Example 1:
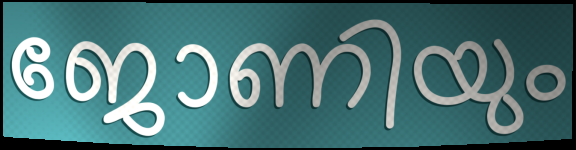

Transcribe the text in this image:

ജോണിയും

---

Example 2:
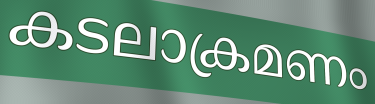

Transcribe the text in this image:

കടലാക്രമണം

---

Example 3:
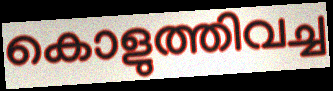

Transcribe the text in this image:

കൊളുത്തിവച്ച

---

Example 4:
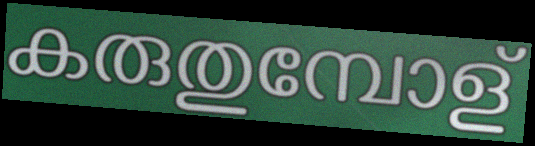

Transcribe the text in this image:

കരുതുമ്പോള്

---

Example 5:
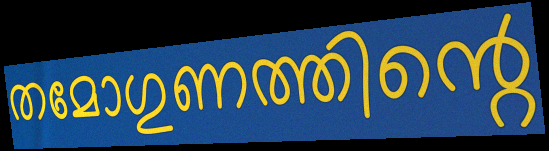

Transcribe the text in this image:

തമോഗുണത്തിന്റെ